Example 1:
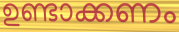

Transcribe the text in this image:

ഉണ്ടാക്കണം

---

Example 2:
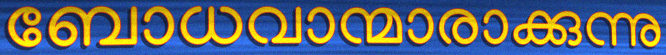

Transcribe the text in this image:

ബോധവാന്മാരാക്കുന്നു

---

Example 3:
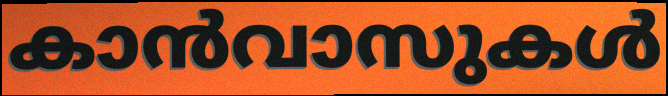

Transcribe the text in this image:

കാൻവാസുകൾ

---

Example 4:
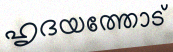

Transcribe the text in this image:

ഹൃദയത്തോട്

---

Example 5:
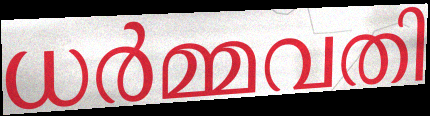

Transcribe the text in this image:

ധർമ്മവതി